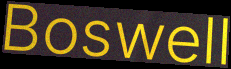
Boswell